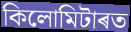
কিলোমিটাৰত